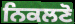
ਨਿਕਲਣੋ